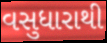
વસુધારાથી